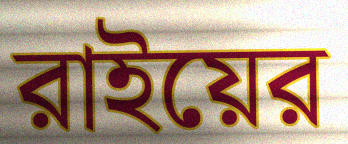
রাইয়ের